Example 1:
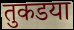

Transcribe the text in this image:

तुकडया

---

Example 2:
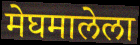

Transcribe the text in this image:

मेघमालेला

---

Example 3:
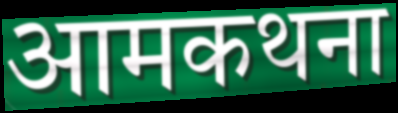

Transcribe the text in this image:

आमकथना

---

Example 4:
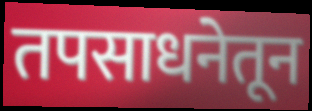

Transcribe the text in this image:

तपसाधनेतून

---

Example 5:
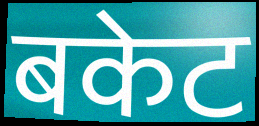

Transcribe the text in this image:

बकेट